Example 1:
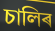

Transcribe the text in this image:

চালিৰ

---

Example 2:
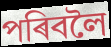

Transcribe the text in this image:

পৰিবলৈ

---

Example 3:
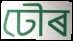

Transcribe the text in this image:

ঢৌৰ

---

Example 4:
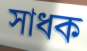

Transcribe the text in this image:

সাধক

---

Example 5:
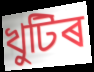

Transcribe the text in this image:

খুটিৰ